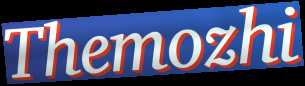
Themozhi